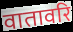
वातावरि